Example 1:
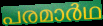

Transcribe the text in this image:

പരമാർഥ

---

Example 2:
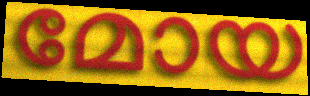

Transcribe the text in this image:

മോയ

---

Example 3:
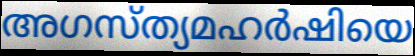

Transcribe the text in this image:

അഗസ്ത്യമഹർഷിയെ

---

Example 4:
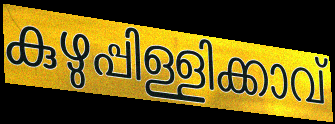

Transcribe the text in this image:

കുഴുപ്പിള്ളിക്കാവ്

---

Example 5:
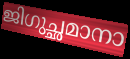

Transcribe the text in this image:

ജിഗുച്ഛമാനാ